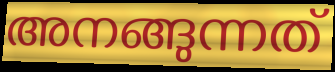
അനങ്ങുന്നത്